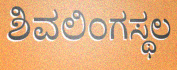
ಶಿವಲಿಂಗಸ್ಥಲ